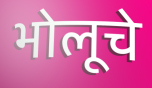
भोलूचे